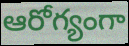
ఆరోగ్యంగా